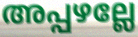
അപ്പഴല്ലേ